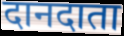
दानदाता